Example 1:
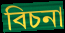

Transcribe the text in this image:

বিচনা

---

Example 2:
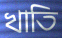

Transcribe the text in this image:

খাতি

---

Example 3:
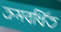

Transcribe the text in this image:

ক্ৰমবৰ্ধিত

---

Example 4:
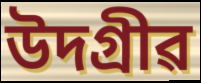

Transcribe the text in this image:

উদগ্ৰীৱ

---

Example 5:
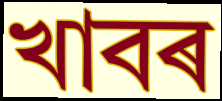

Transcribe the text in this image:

খাবৰ